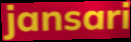
jansari